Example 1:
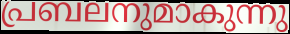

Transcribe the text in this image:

പ്രബലനുമാകുന്നു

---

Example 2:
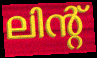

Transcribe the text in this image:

ലിന്റ്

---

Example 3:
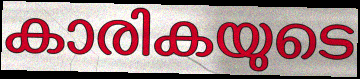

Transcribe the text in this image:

കാരികയുടെ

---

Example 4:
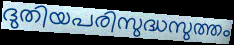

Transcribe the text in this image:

ദുതിയപരിസുദ്ധസുത്തം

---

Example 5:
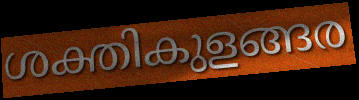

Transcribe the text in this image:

ശക്തികുളങ്ങര